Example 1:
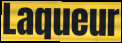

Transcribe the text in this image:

Laqueur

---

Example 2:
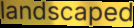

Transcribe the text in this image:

landscaped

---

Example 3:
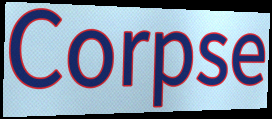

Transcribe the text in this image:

Corpse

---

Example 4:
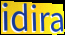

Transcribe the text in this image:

idira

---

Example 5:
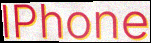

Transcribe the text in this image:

IPhone